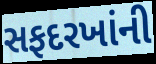
સફદરખાંની